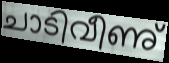
ചാടിവീണു്